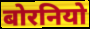
बोरनियो